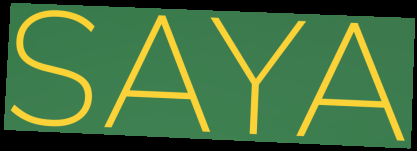
SAYA